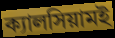
ক্যালসিয়ামই